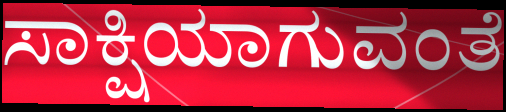
ಸಾಕ್ಷಿಯಾಗುವಂತೆ